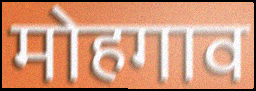
मोहगाव